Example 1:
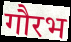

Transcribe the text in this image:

गौरभ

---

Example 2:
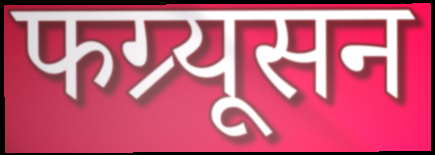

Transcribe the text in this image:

फग्र्यूसन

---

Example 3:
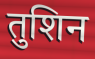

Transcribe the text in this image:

तुशिन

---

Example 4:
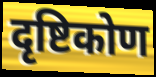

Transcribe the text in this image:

दृष्टिकोण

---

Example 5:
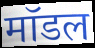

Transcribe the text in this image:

मॉडल